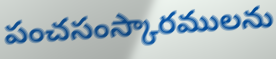
పంచసంస్కారములను